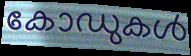
കോഡുകൾ